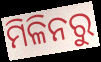
ମିଳିନରୁ